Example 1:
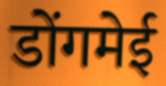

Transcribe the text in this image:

डोंगमेई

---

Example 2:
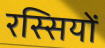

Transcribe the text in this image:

रस्सियों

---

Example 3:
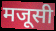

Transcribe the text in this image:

मजूसी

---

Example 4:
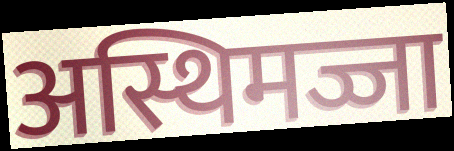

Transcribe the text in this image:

अस्थिमज्जा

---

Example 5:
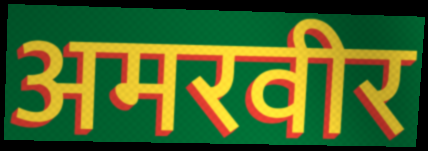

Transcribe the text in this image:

अमरवीर